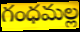
గంధమల్ల